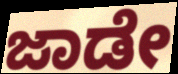
ಜಾಡೇ